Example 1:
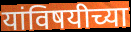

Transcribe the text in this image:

यांविषयीच्या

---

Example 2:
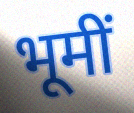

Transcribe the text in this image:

भूमीं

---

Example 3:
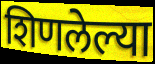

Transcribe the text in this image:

शिणलेल्या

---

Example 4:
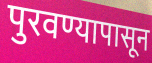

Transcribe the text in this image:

पुरवण्यापासून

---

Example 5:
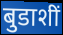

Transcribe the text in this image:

बुडाशीं